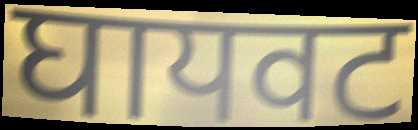
घायवट